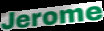
Jerome